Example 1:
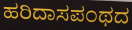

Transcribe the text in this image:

ಹರಿದಾಸಪಂಥದ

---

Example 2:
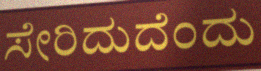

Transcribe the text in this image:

ಸೇರಿದುದೆಂದು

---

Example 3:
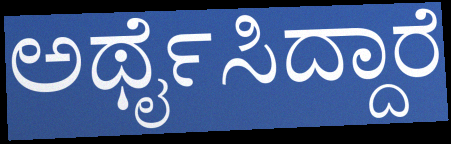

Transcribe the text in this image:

ಅರ್ಥೈಸಿದ್ದಾರೆ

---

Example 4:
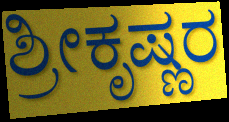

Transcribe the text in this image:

ಶ್ರೀಕೃಷ್ಣರ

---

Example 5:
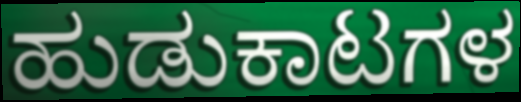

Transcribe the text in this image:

ಹುಡುಕಾಟಗಳ